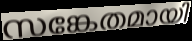
സങ്കേതമായി